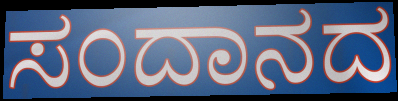
ಸಂದಾನದ